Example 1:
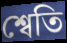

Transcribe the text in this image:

শ্বেতি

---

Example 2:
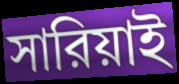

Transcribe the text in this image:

সারিয়াই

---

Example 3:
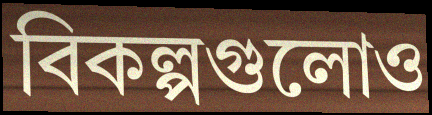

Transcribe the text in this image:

বিকল্পগুলোও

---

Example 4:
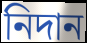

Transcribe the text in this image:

নিদান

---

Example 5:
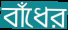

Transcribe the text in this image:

বাঁধের